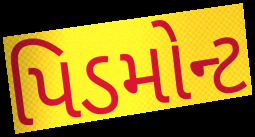
પિડમોન્ટ